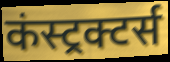
कंस्ट्रक्टर्स